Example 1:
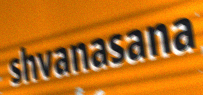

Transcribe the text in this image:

shvanasana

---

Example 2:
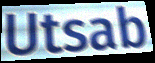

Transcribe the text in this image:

Utsab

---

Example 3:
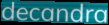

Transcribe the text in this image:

decandra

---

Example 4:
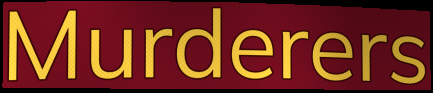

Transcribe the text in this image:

Murderers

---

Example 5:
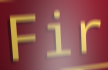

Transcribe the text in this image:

Fir